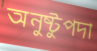
অনুষ্টুপদা